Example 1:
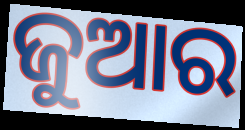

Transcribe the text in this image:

ଜୁଆର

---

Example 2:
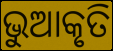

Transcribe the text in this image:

ଭୁଆକୃତି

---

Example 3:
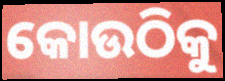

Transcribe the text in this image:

କୋଉଠିକୁ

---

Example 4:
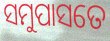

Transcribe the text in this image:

ସମୁପାସତେ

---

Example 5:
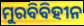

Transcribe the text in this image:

ମୁରବିବିହୀନ